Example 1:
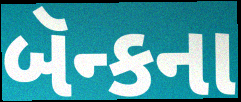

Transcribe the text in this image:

બૅન્કના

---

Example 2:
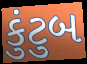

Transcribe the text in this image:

કુંટુબ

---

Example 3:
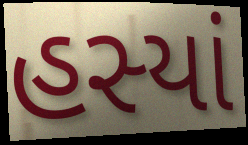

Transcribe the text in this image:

હસ્યાં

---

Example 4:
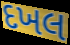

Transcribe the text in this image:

દખલ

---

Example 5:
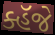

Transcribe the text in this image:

ક્હૅજે